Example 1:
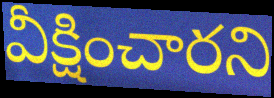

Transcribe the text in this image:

వీక్షించారని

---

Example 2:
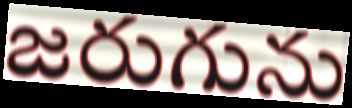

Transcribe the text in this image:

జరుగును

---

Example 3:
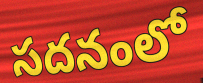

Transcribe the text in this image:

సదనంలో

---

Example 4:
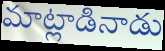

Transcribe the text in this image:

మాట్లాడినాడు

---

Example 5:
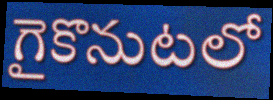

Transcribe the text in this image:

గైకొనుటలో